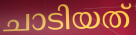
ചാടിയത്